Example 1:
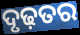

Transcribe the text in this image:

ଦୃଢ଼ତର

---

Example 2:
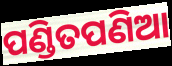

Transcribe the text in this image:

ପଣ୍ଡିତପଣିଆ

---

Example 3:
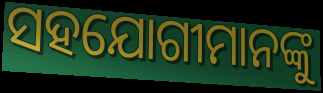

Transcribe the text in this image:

ସହଯୋଗୀମାନଙ୍କୁ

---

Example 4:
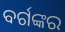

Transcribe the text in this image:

ବର୍ଗଙ୍କର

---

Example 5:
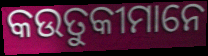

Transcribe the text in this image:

କଉତୁକୀମାନେ